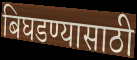
बिघडण्यासाठी